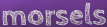
morsels